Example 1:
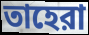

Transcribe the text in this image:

তাহেরা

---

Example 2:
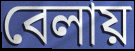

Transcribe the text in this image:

বেলায়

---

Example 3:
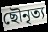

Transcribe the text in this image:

ছৌনৃত্য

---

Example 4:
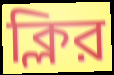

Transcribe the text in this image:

ক্লির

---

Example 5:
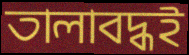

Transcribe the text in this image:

তালাবদ্ধই